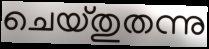
ചെയ്തുതന്നു